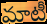
మాటీ